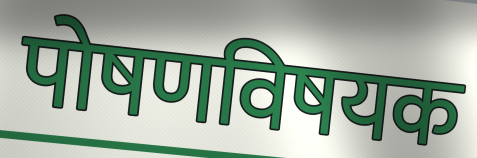
पोषणविषयक